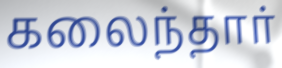
கலைந்தார்